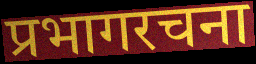
प्रभागरचना